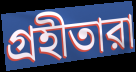
গ্রহীতারা